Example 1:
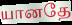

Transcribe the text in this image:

யானதே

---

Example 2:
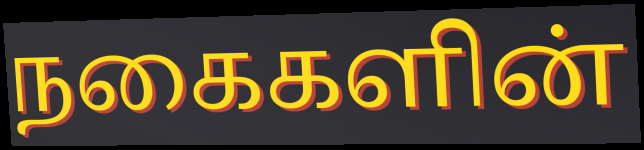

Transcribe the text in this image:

நகைகளின்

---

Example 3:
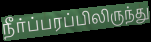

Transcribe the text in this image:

நீர்ப்பரப்பிலிருந்து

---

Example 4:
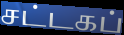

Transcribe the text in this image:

சட்டகப்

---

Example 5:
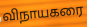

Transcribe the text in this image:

விநாயகரை